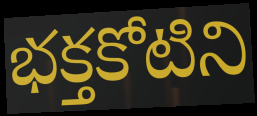
భక్తకోటిని